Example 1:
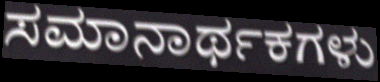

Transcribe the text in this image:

ಸಮಾನಾರ್ಥಕಗಳು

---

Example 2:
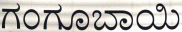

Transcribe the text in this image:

ಗಂಗೂಬಾಯಿ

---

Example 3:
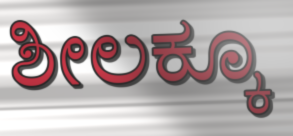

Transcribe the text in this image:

ಶೀಲಕ್ಕೂ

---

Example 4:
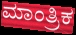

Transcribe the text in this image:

ಮಾಂತ್ರಿಕ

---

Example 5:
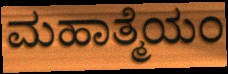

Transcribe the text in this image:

ಮಹಾತ್ಮೆಯಂ